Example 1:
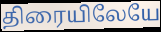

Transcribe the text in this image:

திரையிலேயே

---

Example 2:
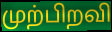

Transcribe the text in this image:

முற்பிறவி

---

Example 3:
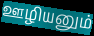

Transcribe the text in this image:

ஊழியனும்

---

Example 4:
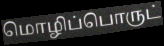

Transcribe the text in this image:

மொழிப்பொருட்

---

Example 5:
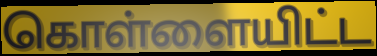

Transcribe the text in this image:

கொள்ளையிட்ட